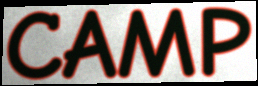
CAMP